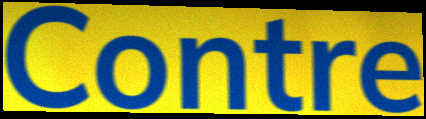
Contre